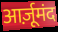
आर्ज़ूमंद